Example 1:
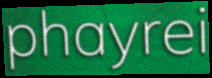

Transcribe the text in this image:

phayrei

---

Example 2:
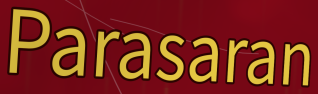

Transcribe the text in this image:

Parasaran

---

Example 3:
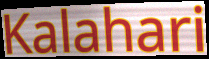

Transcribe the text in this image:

Kalahari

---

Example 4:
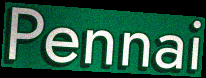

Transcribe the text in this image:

Pennai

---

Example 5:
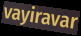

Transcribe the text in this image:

vayiravar